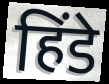
हिंडे